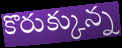
కొరుక్కున్న